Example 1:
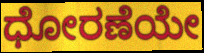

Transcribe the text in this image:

ಧೋರಣೆಯೇ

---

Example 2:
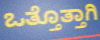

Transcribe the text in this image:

ಒತ್ತೊತ್ತಾಗಿ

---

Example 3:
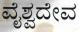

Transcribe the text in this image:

ವೈಶ್ವದೇವ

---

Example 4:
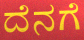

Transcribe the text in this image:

ದೆನಗೆ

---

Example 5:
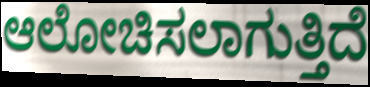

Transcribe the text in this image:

ಆಲೋಚಿಸಲಾಗುತ್ತಿದೆ